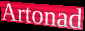
Artonad